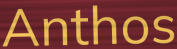
Anthos